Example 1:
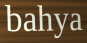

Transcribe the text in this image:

bahya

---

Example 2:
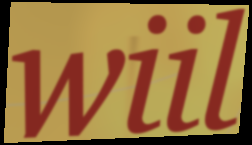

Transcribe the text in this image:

wiil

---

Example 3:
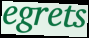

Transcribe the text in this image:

egrets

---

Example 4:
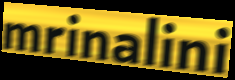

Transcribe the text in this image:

mrinalini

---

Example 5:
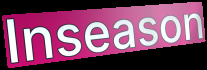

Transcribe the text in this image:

Inseason